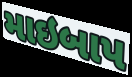
માઇબાપ